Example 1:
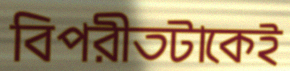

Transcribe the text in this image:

বিপরীতটাকেই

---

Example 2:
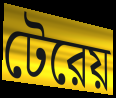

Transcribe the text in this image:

টেরেয়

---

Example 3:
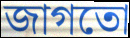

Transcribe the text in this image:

জাগতো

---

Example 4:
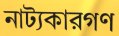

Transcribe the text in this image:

নাট্যকারগণ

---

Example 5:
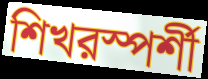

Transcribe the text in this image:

শিখরস্পর্শী